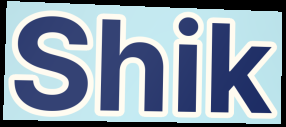
Shik